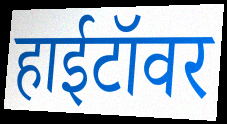
हाईटॉवर